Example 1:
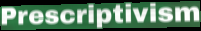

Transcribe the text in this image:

Prescriptivism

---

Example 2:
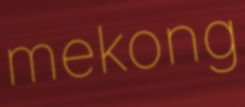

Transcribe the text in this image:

mekong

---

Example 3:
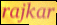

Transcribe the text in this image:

rajkar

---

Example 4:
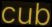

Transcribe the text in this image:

cub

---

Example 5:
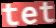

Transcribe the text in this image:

tet